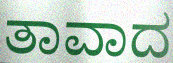
ತಾವಾದ